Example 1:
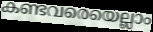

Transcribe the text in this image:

കണ്ടവരെയെല്ലാം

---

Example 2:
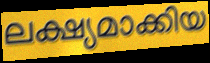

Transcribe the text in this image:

ലക്ഷ്യമാക്കിയ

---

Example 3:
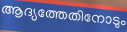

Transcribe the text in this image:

ആദ്യത്തേതിനോടും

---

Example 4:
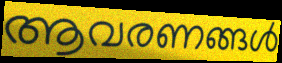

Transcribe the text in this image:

ആവരണങ്ങൾ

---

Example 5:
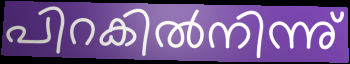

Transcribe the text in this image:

പിറകിൽനിന്നു്